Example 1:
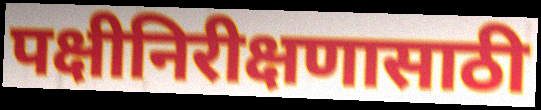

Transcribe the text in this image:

पक्षीनिरीक्षणासाठी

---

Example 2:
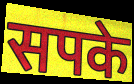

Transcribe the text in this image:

सपके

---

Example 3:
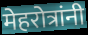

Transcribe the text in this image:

मेहरोत्रांनी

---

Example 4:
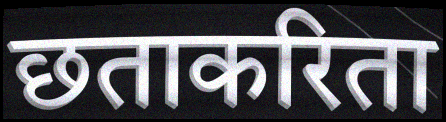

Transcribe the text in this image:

छताकरिता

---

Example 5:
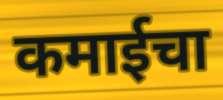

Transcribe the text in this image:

कमाईचा